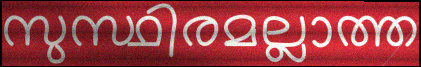
സുസ്ഥിരമല്ലാത്ത